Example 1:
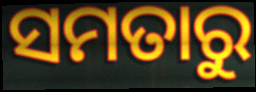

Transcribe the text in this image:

ସମତାରୁ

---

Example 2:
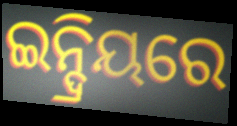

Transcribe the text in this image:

ଇନ୍ଦ୍ରିୟରେ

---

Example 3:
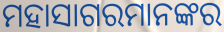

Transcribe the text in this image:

ମହାସାଗରମାନଙ୍କର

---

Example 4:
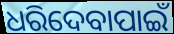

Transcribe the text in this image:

ଧରିଦେବାପାଇଁ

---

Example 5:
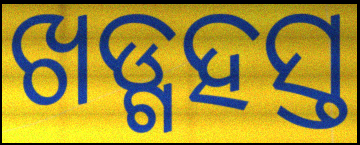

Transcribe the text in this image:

ଖଡ୍ଗହସ୍ତ